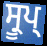
ਸ੍ਰੂਪ੍